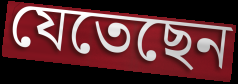
যেতেছেন